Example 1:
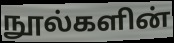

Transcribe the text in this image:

நூல்களின்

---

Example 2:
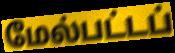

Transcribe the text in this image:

மேல்பட்டப்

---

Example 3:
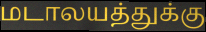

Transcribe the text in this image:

மடாலயத்துக்கு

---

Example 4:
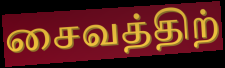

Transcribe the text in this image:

சைவத்திற்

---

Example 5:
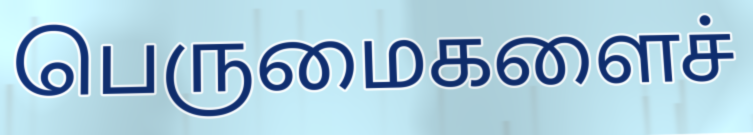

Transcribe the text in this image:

பெருமைகளைச்